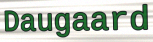
Daugaard